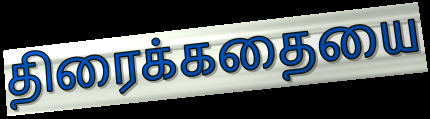
திரைக்கதையை